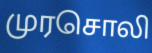
முரசொலி